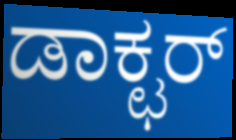
ಡಾಕ್ಟರ್